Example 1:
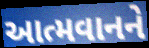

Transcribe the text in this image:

આત્મવાનને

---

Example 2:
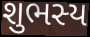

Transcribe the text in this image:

શુભસ્ય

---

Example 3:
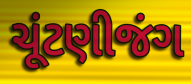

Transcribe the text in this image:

ચૂંટણીજંગ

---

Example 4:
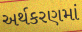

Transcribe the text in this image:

અર્થકરણમાં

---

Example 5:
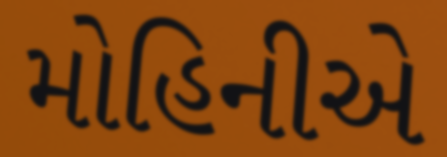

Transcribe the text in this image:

મોહિનીએ